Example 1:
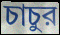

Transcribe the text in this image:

চাচুর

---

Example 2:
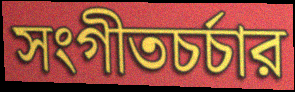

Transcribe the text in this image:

সংগীতচর্চার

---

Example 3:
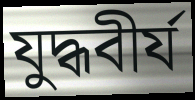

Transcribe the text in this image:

যুদ্ধবীর্য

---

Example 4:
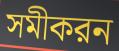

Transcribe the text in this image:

সমীকরন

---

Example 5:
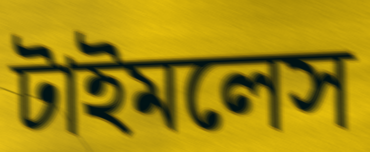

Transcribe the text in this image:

টাইমলেস